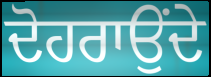
ਦੋਹਰਾਉਂਦੇ